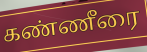
கண்ணீரை